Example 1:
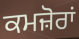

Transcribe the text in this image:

ਕਮਜ਼ੋਰਾਂ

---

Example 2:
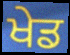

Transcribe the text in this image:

ਖੇਡ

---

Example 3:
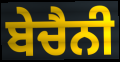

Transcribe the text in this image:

ਬੇਚੈਨੀ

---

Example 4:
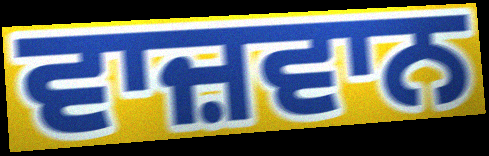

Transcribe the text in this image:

ਵਾਜ਼ਵਾਨ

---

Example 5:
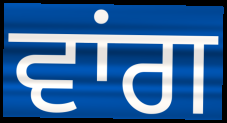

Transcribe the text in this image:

ਵਾਂਗ